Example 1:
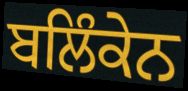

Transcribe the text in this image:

ਬਲਿੰਕੇਨ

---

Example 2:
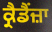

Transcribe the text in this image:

ਕ੍ਰੈਡੈਂਜ਼ਾ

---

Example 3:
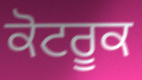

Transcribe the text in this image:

ਕੋਟਰੂਕ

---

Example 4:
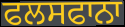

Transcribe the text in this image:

ਫਲਸਫਾਨਾ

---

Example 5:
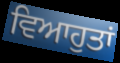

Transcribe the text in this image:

ਵਿਆਹੁਤਾਂ